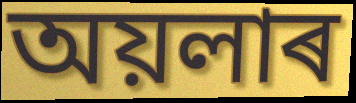
অয়লাৰ